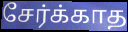
சேர்க்காத